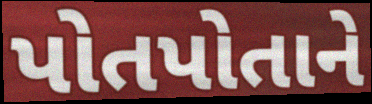
પોતપોતાને